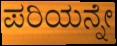
ಪರಿಯನ್ನೇ